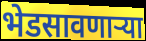
भेडसावणार्‍या